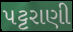
પટ્ટરાણી